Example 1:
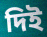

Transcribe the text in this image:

দিই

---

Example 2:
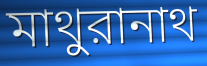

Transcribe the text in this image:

মাথুরানাথ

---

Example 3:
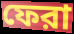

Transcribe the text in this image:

ফেরা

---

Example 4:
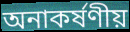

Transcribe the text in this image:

অনাকর্ষণীয়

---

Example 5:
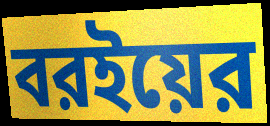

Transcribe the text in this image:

বরইয়ের